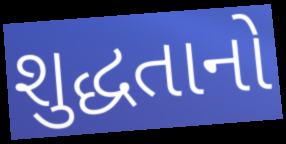
શુદ્ધતાનો